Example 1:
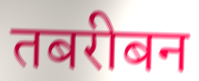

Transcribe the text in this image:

तबरीबन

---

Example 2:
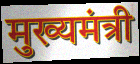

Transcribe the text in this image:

मुख्‍यमंत्री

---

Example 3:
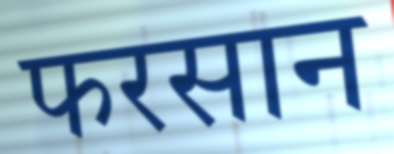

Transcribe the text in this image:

फरसान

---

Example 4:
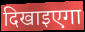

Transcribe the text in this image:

दिखाइएगा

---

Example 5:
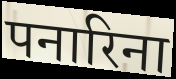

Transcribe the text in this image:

पनारिना